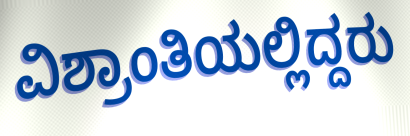
ವಿಶ್ರಾಂತಿಯಲ್ಲಿದ್ದರು